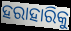
ହରାହାରିକୁ